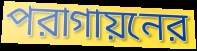
পরাগায়নের